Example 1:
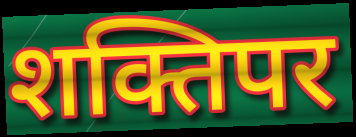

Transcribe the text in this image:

शक्तिपर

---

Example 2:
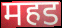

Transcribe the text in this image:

महड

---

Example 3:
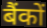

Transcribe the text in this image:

बैंकों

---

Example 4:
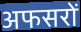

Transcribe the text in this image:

अफसरों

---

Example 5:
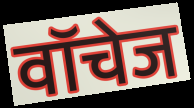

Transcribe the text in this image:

वॉचेज